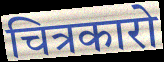
चित्रकारो